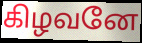
கிழவனே